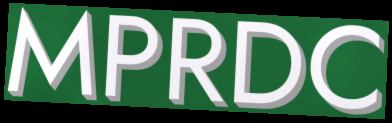
MPRDC